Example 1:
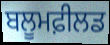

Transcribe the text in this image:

ਬਲੂਮਫ਼ੀਲਡ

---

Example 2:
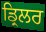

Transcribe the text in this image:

ਡ੍ਰਿਲਰ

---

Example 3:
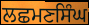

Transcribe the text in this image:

ਲਛਮਣਸਿੰਘ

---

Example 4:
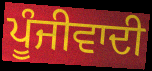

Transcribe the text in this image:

ਪੂੰਜੀਵਾਦੀ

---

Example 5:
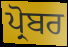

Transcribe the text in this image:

ਪ੍ਰੋਬਰ